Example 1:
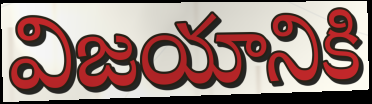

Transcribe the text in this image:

విజయానికి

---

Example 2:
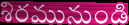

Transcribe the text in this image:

శిరమునుండి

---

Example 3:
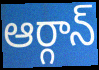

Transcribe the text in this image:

ఆర్గాన్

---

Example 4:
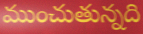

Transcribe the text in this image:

ముంచుతున్నది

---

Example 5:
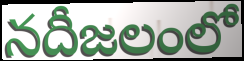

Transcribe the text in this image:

నదీజలంలో